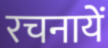
रचनायें